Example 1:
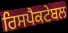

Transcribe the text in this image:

ਰਿਸਪੈਕਟੇਬਲ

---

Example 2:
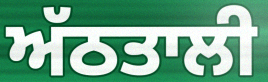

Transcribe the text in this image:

ਅੱਠਤਾਲੀ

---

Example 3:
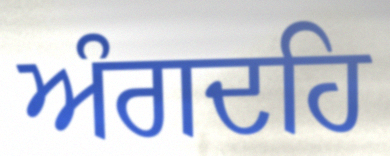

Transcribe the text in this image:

ਅੰਗਦਹਿ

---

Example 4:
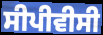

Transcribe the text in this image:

ਸੀਪੀਵੀਸੀ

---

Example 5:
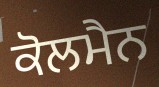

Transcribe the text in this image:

ਕੋਲਮੈਨ